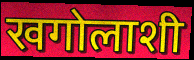
खगोलाशी